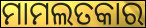
ମାମଲତକାର